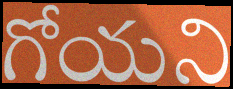
గోయని